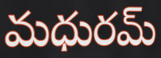
మధురమ్